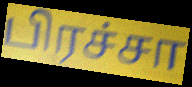
பிரச்சா